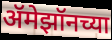
ॲमेझॉनच्या